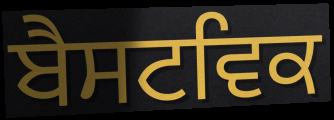
ਬੈਸਟਵਿਕ